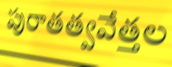
పురాతత్వవేత్తల